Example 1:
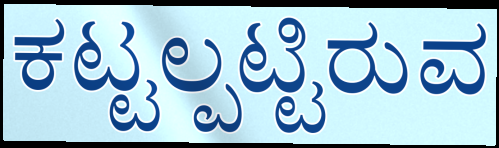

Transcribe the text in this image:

ಕಟ್ಟಲ್ಪಟ್ಟಿರುವ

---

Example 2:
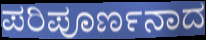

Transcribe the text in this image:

ಪರಿಪೂರ್ಣನಾದ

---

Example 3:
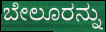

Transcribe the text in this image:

ಬೇಲೂರನ್ನು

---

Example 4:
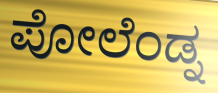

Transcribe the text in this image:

ಪೋಲೆಂಡ್ನ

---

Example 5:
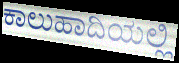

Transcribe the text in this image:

ಕಾಲುಹಾದಿಯಲ್ಲಿ